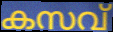
കസവ്